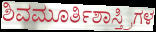
ಶಿವಮೂರ್ತಿಶಾಸ್ತ್ರಿಗಳ